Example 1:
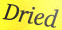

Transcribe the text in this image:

Dried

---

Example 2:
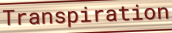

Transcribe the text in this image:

Transpiration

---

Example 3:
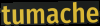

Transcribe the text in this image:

tumache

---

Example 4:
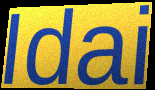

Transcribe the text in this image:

Idai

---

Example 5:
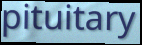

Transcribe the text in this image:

pituitary